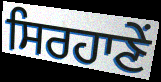
ਸਿਰਹਾਣੇਂ